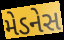
મેડનેસ